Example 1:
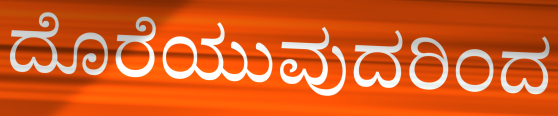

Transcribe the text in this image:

ದೊರೆಯುವುದರಿಂದ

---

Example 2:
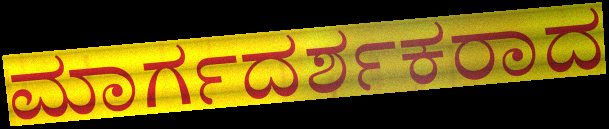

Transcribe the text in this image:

ಮಾರ್ಗದರ್ಶಕರಾದ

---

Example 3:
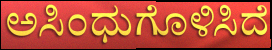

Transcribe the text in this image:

ಅಸಿಂಧುಗೊಳಿಸಿದೆ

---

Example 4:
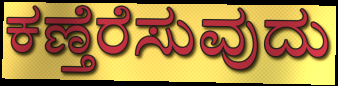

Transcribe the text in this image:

ಕಣ್ತೆರೆಸುವುದು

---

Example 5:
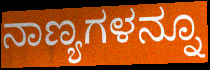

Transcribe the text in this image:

ನಾಣ್ಯಗಳನ್ನೂ